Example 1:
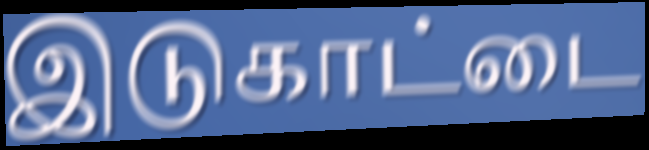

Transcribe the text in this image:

இடுகாட்டை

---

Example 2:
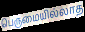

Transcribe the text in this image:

பெருமையில்லாத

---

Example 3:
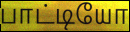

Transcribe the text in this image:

பாட்டியோ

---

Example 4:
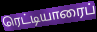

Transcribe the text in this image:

ரெட்டியாரைப்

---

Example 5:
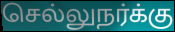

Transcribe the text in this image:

செல்லுநர்க்கு